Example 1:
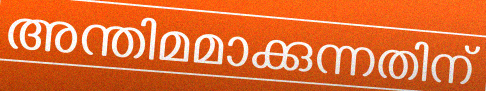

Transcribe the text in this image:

അന്തിമമാക്കുന്നതിന്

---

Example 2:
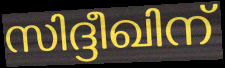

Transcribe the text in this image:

സിദ്ദീഖിന്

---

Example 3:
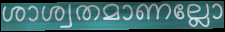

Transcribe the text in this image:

ശാശ്വതമാണല്ലോ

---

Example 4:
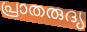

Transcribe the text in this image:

പ്രാതരുദ്യ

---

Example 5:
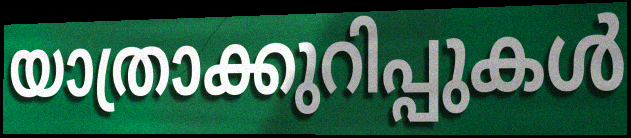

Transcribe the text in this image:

യാത്രാക്കുറിപ്പുകൾ